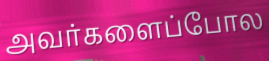
அவர்களைப்போல